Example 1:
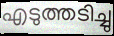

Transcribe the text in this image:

എടുത്തടിച്ചു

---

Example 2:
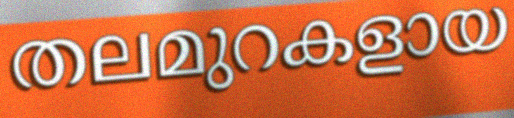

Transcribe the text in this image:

തലമുറകളായ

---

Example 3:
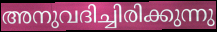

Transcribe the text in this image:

അനുവദിച്ചിരിക്കുന്നു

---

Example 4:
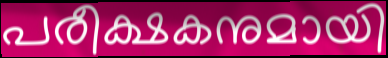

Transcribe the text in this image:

പരീക്ഷകനുമായി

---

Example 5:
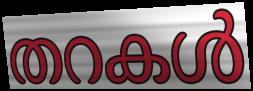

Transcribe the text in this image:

തറകൾ